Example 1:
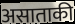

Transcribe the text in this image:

असाताकी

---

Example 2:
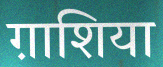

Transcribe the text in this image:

ग़ाशिया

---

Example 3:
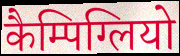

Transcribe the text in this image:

कैम्पिग्लियो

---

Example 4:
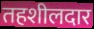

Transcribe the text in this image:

तहशीलदार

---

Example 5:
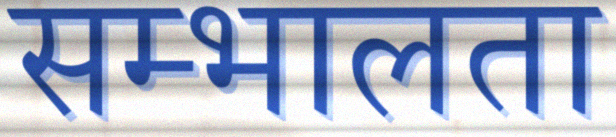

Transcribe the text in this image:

सम्भालता